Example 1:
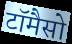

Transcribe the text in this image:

टॉमैसो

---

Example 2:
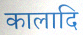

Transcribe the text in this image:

कालादि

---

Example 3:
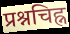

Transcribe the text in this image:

प्रश्नचिह्न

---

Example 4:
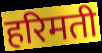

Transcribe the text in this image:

हरिमती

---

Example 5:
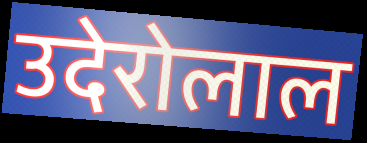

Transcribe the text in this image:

उदेरोलाल